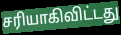
சரியாகிவிட்டது